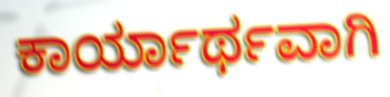
ಕಾರ್ಯಾರ್ಥವಾಗಿ